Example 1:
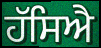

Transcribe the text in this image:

ਹੱਸਿਐ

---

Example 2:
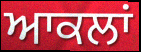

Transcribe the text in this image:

ਆਕਲਾਂ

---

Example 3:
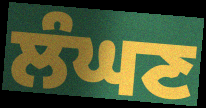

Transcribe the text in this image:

ਲੰਘਣ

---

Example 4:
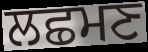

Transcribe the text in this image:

ਲਛਮਣ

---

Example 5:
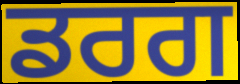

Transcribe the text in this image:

ਡਰਗ